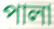
পালা